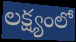
లక్ష్యంలో